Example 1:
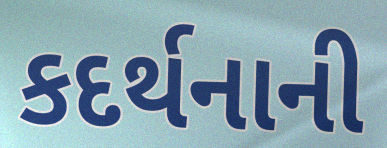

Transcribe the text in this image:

કદર્થનાની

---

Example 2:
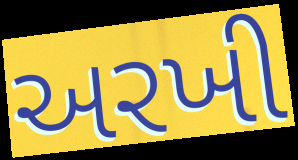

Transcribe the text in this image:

અરખી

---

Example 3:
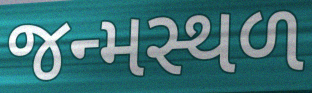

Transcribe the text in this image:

જન્મસ્થળ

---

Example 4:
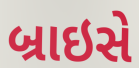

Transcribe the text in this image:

બ્રાઇસે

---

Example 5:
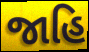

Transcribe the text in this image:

જાહિ